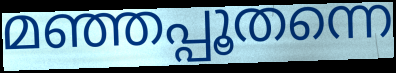
മഞ്ഞപ്പൂതന്നെ